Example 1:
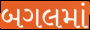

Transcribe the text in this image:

બગલમાં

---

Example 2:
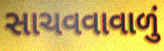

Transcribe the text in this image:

સાચવવાવાળું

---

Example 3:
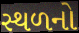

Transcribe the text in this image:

સ્થળનો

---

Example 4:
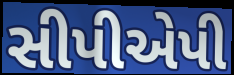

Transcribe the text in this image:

સીપીએપી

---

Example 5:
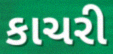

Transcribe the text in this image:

કાચરી